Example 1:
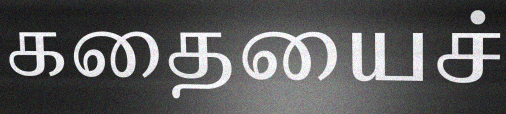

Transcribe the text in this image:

கதையைச்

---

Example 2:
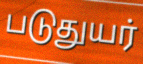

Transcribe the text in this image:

படுதுயர்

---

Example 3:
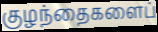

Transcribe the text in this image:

குழந்தைகளைப்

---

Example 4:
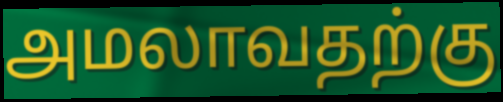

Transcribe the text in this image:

அமலாவதற்கு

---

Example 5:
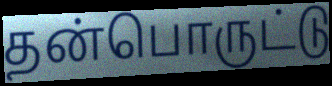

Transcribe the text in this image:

தன்பொருட்டு